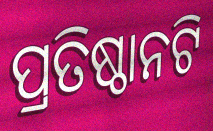
ପ୍ରତିଷ୍ଠାନଟି